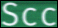
Scc